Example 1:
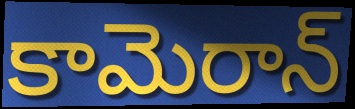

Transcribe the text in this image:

కామెరాన్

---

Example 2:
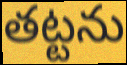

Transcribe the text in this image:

తట్టను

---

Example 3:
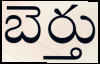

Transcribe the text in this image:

బెర్తు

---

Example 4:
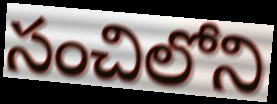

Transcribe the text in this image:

సంచిలోని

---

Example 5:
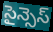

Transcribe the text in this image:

సైన్సెస్